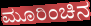
ಮೂರಿಂಚಿನ